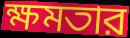
ক্ষমতার